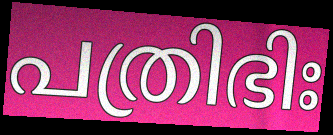
പത്രിഭിഃ